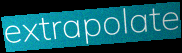
extrapolate